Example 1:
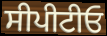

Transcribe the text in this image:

ਸੀਪੀਟੀਓ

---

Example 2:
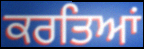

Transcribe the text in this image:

ਕਰਤਿਆਂ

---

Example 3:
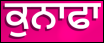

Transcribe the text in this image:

ਕੁਨਾਫਾ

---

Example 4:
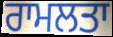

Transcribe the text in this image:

ਰਾਮਲਤਾ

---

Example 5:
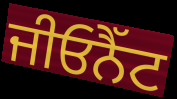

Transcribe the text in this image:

ਜੀਓਨੈੱਟ